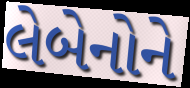
લેબેનોને